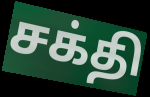
சக்தி